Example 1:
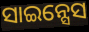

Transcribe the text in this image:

ସାଇନ୍ସେସ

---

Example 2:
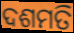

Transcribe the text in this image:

ଦଶମତି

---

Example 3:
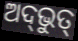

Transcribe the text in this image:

ଅଦ୍‌ଭୁତ୍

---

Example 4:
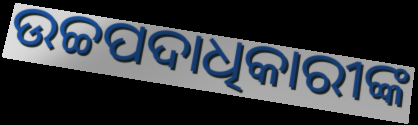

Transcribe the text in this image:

ଉଚ୍ଚପଦାଧିକାରୀଙ୍କ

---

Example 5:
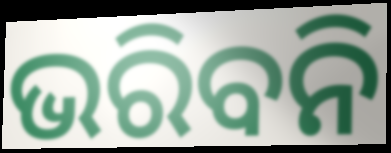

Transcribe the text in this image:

ଭରିବନି